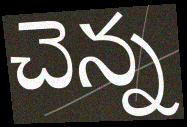
చెన్న